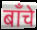
बाँचे